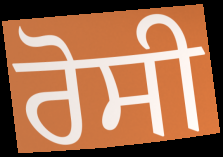
ਰੋਸੀ